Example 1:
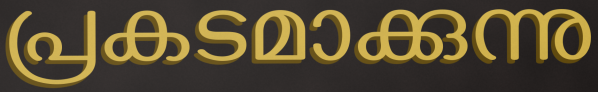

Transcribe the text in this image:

പ്രകടമാക്കുന്നു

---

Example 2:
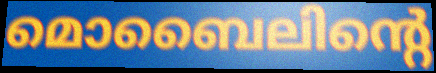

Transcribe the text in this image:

മൊബൈലിന്റെ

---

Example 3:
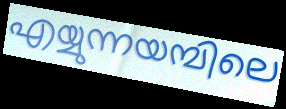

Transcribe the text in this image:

എയ്യുന്നയമ്പിലെ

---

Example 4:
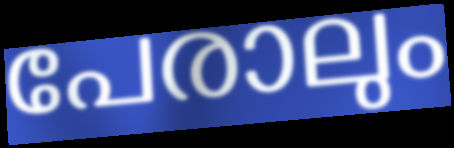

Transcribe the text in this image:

പേരാലും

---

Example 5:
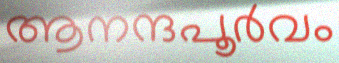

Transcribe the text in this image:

ആനന്ദപൂർവം